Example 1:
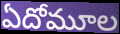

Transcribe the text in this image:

ఏదోమూల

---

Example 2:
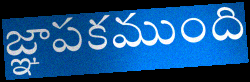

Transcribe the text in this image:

జ్ఞాపకముంది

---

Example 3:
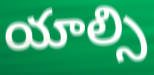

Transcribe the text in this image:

యాల్సి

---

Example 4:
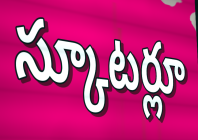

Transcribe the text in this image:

స్కూటర్లూ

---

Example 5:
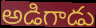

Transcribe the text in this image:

అడిగాడు